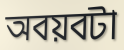
অবয়বটা